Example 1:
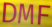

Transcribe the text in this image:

DMF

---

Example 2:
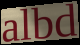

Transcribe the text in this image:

albd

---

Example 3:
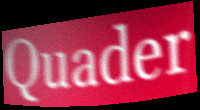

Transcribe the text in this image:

Quader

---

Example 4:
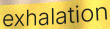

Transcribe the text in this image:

exhalation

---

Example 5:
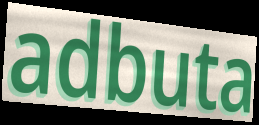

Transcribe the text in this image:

adbuta